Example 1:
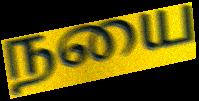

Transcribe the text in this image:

நயை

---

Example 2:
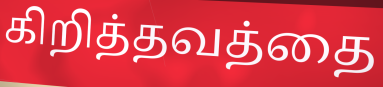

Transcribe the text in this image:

கிறித்தவத்தை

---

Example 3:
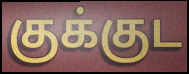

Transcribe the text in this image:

குக்குட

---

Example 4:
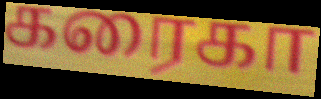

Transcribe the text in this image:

கரைகா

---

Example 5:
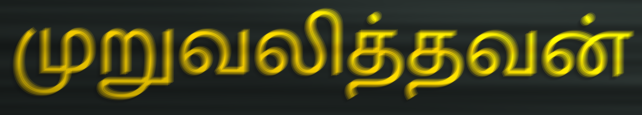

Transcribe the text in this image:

முறுவலித்தவன்